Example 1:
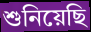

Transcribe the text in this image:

শুনিয়েছি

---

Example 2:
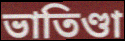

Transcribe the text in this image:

ভাতিণ্ডা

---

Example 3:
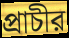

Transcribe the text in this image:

প্রাচীর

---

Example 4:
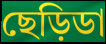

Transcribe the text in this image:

ছেড়িডা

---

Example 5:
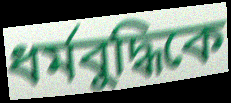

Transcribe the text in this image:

ধর্মবুদ্ধিকে